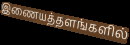
இணையத்தளங்களில்